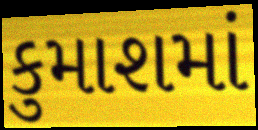
કુમાશમાં